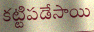
కట్టిపడేసాయి